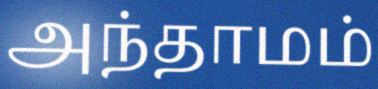
அந்தாமம்